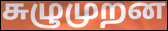
சுழுமுறன